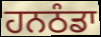
ਹਨਠੰਡਾ